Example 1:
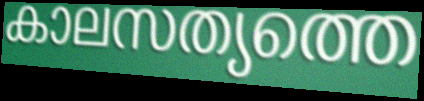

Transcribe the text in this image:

കാലസത്യത്തെ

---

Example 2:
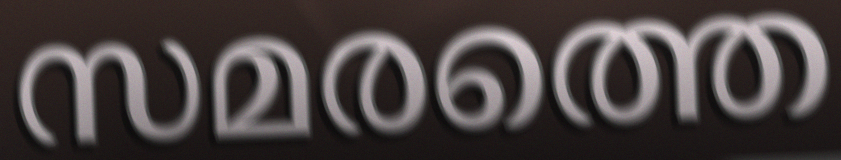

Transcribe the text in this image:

സമരത്തെ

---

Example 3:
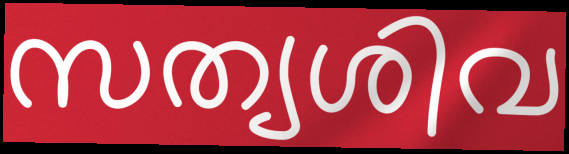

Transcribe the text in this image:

സത്യശിവ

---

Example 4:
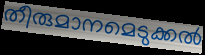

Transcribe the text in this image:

തീരുമാനമെടുക്കൽ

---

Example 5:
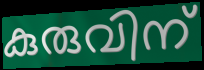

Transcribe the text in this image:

കുരുവിന്